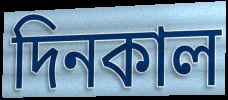
দিনকাল